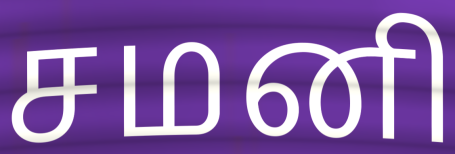
சமனி